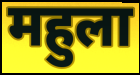
महुला